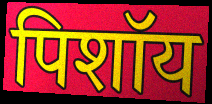
पिशॉय